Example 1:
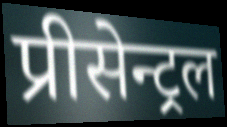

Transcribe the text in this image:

प्रीसेन्ट्रल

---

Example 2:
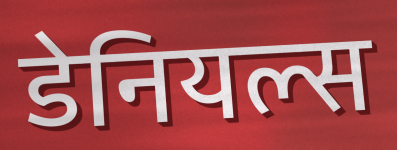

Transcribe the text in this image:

डेनियल्स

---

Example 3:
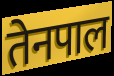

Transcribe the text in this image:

तेनपाल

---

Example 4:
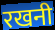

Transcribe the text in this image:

रखनी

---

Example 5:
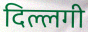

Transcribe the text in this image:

दिल्‍लगी